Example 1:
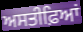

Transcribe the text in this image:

ਅਸਤੀਫ਼ਿਆਂ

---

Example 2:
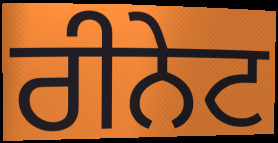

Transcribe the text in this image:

ਰੀਨੇਟ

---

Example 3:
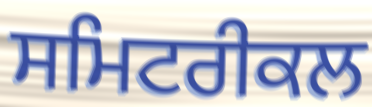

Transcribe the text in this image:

ਸਮਿਟਰੀਕਲ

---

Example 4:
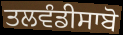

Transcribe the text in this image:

ਤਲਵੰਡੀਸਾਬੋ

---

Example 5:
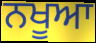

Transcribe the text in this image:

ਨਖੂਆ